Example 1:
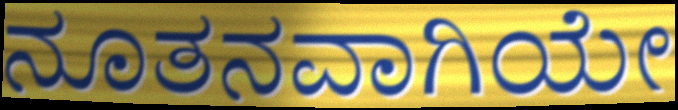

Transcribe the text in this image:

ನೂತನವಾಗಿಯೇ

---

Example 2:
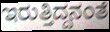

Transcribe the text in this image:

ಇರುತ್ತಿದ್ದನಂತೆ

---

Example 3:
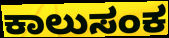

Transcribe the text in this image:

ಕಾಲುಸಂಕ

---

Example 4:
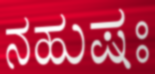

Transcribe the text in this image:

ನಹುಷಃ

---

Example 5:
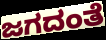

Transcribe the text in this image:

ಜಗದಂತೆ